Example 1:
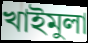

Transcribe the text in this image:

খাইমুলা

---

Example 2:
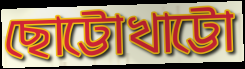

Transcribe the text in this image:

ছোট্টোখাট্টো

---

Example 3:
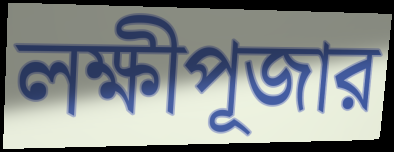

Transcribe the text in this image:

লক্ষীপূজার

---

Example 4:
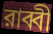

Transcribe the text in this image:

রাব্বী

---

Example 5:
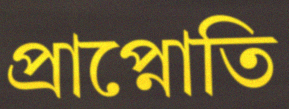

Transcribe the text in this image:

প্রাপ্নোতি